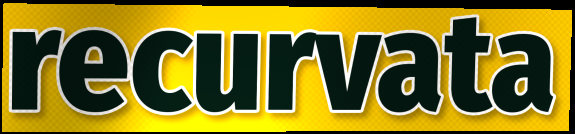
recurvata